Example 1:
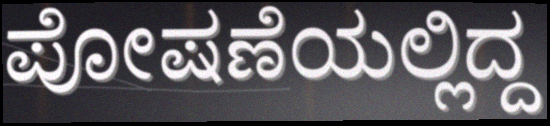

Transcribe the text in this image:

ಪೋಷಣೆಯಲ್ಲಿದ್ದ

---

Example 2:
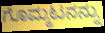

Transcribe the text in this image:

ಗೊಮ್ಮಟನನ್ನು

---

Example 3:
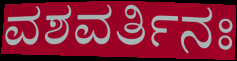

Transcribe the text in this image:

ವಶವರ್ತಿನಃ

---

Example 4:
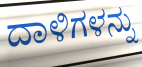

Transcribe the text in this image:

ದಾಳಿಗಳನ್ನು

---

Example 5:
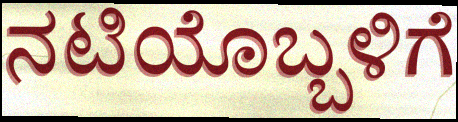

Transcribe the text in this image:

ನಟಿಯೊಬ್ಬಳಿಗೆ